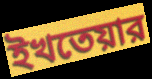
ইখতেয়ার